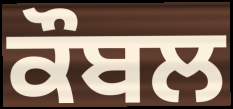
ਕੌਬਲ